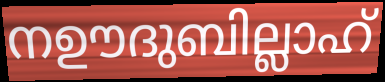
നഊദുബില്ലാഹ്